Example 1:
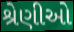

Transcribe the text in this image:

શ્રેણીઓ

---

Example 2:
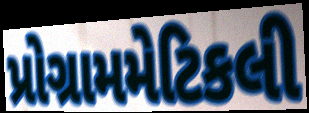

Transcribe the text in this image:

પ્રોગ્રામમેટિકલી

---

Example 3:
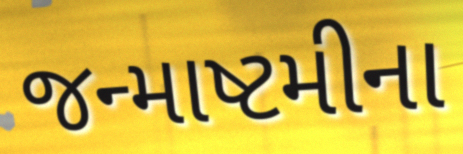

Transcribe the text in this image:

જન્માષ્ટમીના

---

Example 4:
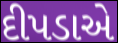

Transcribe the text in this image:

દીપડાએ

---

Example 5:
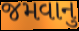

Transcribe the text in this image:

જમવાનુ